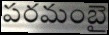
పరమంబై